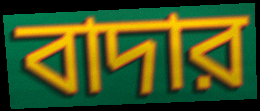
বাদার